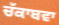
ਚੱਕਾਬਵਾ